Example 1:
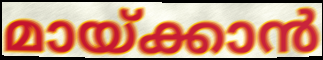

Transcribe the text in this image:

മായ്ക്കാൻ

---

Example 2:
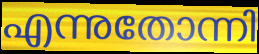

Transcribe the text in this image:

എന്നുതോന്നി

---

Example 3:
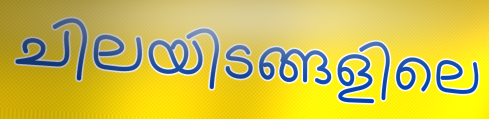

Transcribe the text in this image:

ചിലയിടങ്ങളിലെ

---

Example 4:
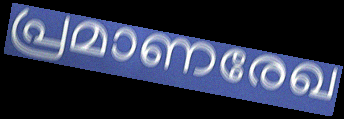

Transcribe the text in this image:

പ്രമാണരേഖ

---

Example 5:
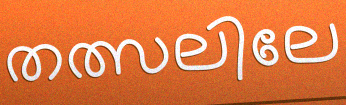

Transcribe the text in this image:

തത്സലിലേ